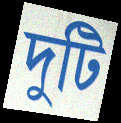
দুটি